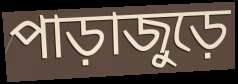
পাড়াজুড়ে